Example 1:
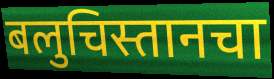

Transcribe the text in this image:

बलुचिस्तानचा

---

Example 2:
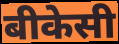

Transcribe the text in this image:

बीकेसी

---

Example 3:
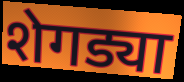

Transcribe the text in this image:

शेगड्या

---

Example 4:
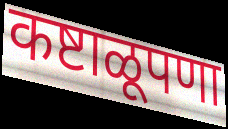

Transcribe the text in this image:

कष्टाळूपणा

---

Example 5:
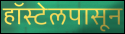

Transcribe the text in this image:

हॉस्टेलपासून